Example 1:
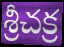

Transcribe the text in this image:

శ్రీచక్ర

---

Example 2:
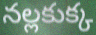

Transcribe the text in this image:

నల్లకుక్క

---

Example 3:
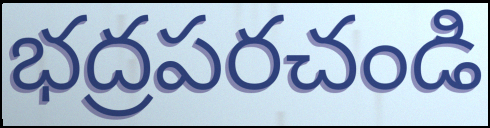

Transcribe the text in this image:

భద్రపరచండి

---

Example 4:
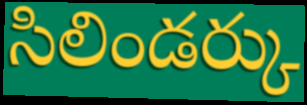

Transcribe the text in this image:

సిలిండర్కు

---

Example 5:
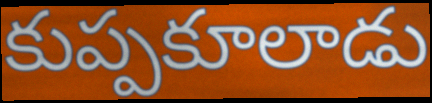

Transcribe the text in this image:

కుప్పకూలాడు